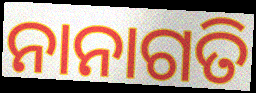
ନାନାଗତି